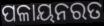
ପଳାୟନରତ